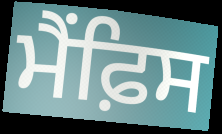
ਮੈਂਫ਼ਿਸ